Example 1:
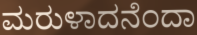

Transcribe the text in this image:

ಮರುಳಾದನೆಂದಾ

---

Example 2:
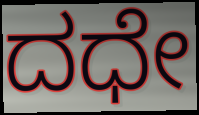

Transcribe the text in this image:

ದಧೇ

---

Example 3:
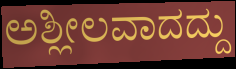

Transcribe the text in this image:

ಅಶ್ಲೀಲವಾದದ್ದು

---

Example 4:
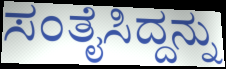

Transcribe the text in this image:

ಸಂತೈಸಿದ್ದನ್ನು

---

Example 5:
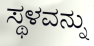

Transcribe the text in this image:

ಸ್ಥಳವನ್ನು